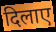
दिलाए